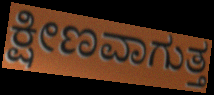
ಕ್ಷೀಣವಾಗುತ್ತ